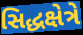
સિદ્ધક્ષેત્રે